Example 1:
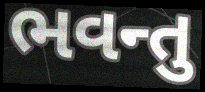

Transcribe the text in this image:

ભવન્તુ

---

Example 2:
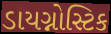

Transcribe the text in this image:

ડાયગ્નોસ્ટિક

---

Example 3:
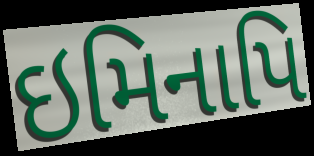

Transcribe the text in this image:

ઇમિનાપિ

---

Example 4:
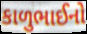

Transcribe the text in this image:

કાળુભાઈનો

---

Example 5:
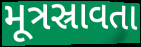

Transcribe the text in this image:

મૂત્રસ્રાવતા